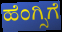
ಹೆಂಗ್ಸಿಗೆ